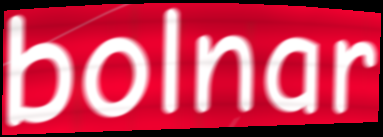
bolnar